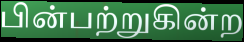
பின்பற்றுகின்ற